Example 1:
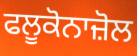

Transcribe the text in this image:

ਫਲੂਕੋਨਾਜ਼ੋਲ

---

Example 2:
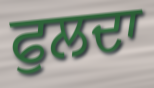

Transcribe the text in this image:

ਫੁਲਦਾ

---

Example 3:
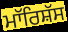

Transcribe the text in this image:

ਮਾੱਰਿਸ਼ੱਸ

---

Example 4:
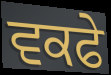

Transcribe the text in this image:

ਵਕਫੇ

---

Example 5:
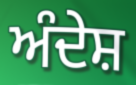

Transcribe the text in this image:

ਅੰਦੇਸ਼